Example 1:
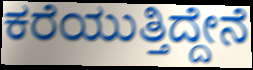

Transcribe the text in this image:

ಕರೆಯುತ್ತಿದ್ದೇನೆ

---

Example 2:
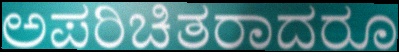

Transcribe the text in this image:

ಅಪರಿಚಿತರಾದರೂ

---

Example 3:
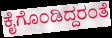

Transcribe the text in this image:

ಕೈಗೊಂಡಿದ್ದರಂತೆ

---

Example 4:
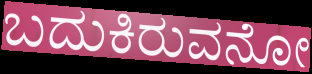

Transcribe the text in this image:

ಬದುಕಿರುವನೋ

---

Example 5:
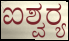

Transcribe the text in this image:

ಐಶ್ವರ‍್ಯ